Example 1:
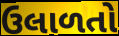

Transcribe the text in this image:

ઉલાળતો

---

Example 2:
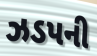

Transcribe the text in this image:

ઝડપની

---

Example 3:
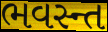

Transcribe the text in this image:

ભવસ્ન્ત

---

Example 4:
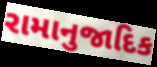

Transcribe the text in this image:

રામાનુજાદિક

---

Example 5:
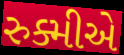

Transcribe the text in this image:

રુક્મીએ